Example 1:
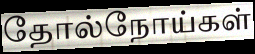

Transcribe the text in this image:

தோல்நோய்கள்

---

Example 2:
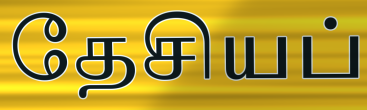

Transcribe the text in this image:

தேசியப்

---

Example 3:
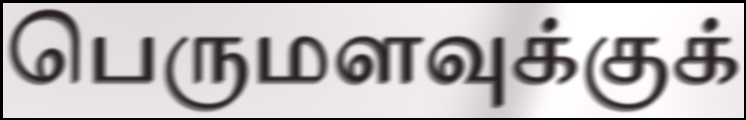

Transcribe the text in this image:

பெருமளவுக்குக்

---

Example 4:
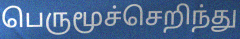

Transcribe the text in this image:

பெருமூச்செறிந்து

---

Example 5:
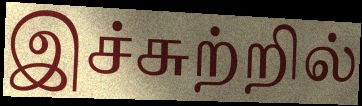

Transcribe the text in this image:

இச்சுற்றில்